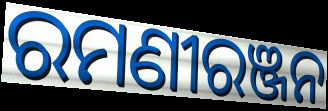
ରମଣୀରଞ୍ଜନ